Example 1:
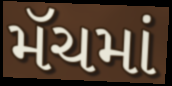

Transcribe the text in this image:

મૅચમાં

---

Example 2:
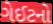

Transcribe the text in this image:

ગેઈટનો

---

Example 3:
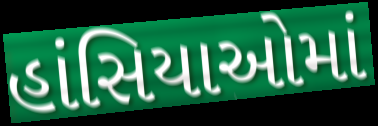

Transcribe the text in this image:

હાંસિયાઓમાં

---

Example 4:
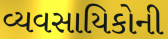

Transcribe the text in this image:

વ્યવસાયિકોની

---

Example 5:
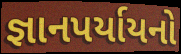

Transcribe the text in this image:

જ્ઞાનપર્યાયનો